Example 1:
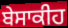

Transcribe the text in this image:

ਬੇਸਾਕੀਹ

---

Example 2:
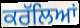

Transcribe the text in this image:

ਕਰੱਲਿਆਂ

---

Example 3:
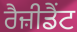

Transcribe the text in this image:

ਰੈਜ਼ੀਡੈਂਟ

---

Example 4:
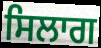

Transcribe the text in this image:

ਸਿਲਾਗ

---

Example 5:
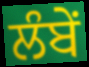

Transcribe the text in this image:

ਲੰਬੇਂ